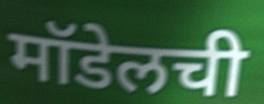
मॉडेलची